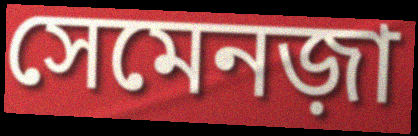
সেমেনজ়া